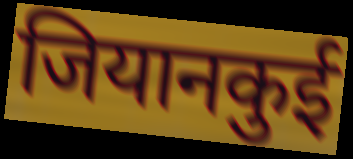
जियानकुई